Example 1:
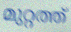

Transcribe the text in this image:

മുറ്റത്ത്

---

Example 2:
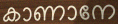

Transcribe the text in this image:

കാണാനേ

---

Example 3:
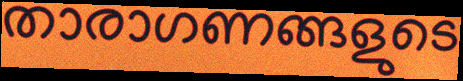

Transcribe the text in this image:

താരാഗണങ്ങളുടെ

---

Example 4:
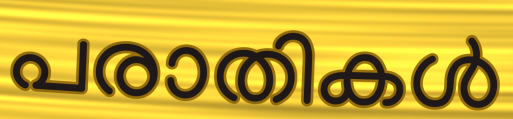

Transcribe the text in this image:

പരാതികൾ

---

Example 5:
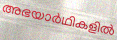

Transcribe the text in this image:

അഭയാർഥികളിൽ